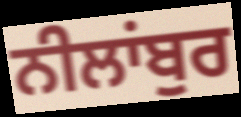
ਨੀਲਾਂਬੁਰ